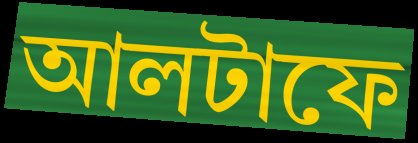
আলটাফে